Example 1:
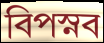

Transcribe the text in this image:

বিপস্নব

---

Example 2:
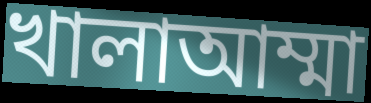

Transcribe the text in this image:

খালাআম্মা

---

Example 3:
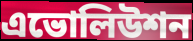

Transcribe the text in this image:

এভোলিউশন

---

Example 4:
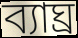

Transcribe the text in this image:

ব্যাঘ্র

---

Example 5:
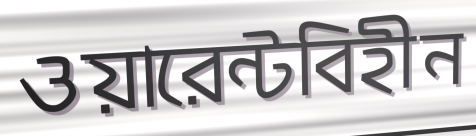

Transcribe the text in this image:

ওয়ারেন্টবিহীন